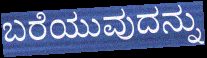
ಬರೆಯುವುದನ್ನು